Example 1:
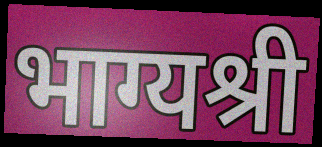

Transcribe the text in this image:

भाग्यश्री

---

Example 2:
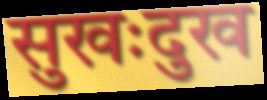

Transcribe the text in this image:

सुखःदुख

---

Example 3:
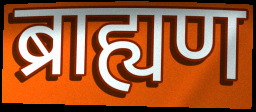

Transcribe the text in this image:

ब्राह्यण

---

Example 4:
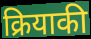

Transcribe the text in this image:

क्रियाकी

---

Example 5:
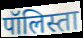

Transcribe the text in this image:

पॉलिस्ता